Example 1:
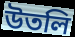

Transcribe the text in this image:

উতলি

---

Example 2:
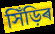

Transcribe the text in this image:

সিঁড়িৰ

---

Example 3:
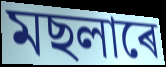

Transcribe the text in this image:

মছলাৰে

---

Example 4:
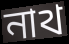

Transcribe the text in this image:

নাথ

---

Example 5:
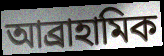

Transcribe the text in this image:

আব্ৰাহামিক